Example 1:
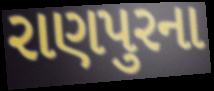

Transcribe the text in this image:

રાણપુરના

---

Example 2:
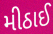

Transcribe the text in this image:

મીઠાઈ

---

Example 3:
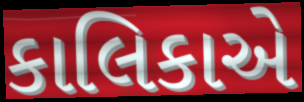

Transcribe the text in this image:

કાલિકાએ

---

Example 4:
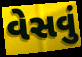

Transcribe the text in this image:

વેસવું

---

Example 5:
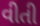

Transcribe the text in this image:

વીતી